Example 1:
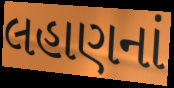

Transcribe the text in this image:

લહાણનાં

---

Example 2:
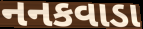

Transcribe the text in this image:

નનકવાડા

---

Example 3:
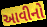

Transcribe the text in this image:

આવીનો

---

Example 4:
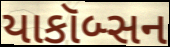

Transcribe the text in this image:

યાકૉબ્સન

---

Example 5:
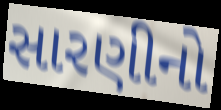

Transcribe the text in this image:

સારણીનો